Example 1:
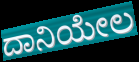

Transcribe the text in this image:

ದಾನಿಯೇಲ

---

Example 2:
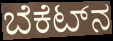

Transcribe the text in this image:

ಬೆಕೆಟ್‌ನ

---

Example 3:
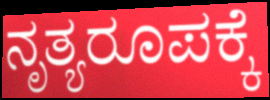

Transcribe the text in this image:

ನೃತ್ಯರೂಪಕ್ಕೆ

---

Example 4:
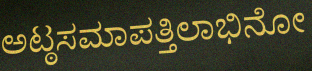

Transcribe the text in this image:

ಅಟ್ಠಸಮಾಪತ್ತಿಲಾಭಿನೋ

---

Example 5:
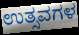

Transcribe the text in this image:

ಉತ್ಸವಗಳ